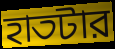
হাতটার